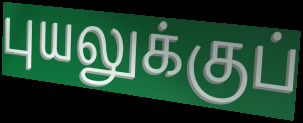
புயலுக்குப்